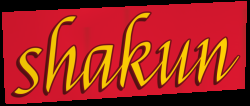
shakun